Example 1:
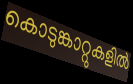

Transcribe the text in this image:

കൊടുങ്കാറ്റുകളിൽ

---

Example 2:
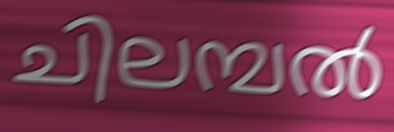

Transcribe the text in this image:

ചിലമ്പൽ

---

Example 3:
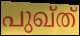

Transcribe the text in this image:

പുഖ്ത്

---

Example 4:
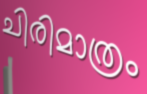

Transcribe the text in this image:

ചിരിമാത്രം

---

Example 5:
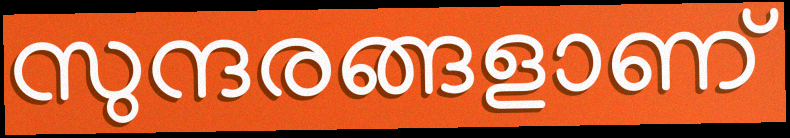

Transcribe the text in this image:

സുന്ദരങ്ങളാണ്